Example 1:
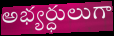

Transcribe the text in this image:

అభ్యర్ధులుగా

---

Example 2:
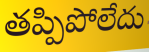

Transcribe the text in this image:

తప్పిపోలేదు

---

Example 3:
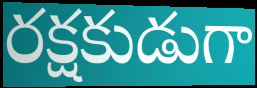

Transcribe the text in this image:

రక్షకుడుగా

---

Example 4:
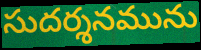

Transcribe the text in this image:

సుదర్శనమును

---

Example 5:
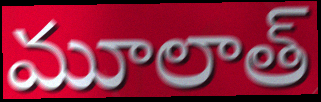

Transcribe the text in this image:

మూలాత్